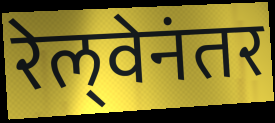
रेल्वेनंतर